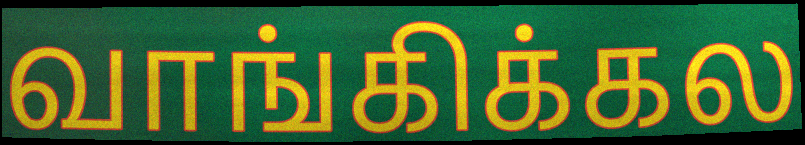
வாங்கிக்கல